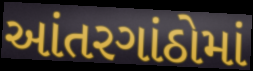
આંતરગાંઠોમાં